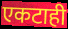
एकटाही